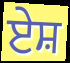
ਏਸ਼